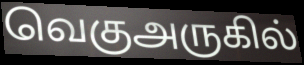
வெகுஅருகில்